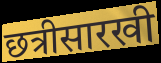
छत्रीसारखी